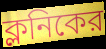
ক্লনিকের